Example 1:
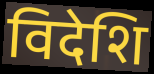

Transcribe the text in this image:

विदेशि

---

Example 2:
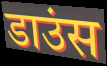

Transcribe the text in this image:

डाउंस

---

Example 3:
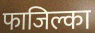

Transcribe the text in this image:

फाजिल्का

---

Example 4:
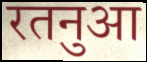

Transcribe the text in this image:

रतनुआ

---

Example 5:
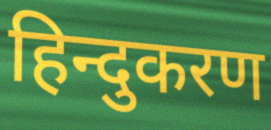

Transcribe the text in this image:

हिन्दुकरण